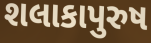
શલાકાપુરુષ